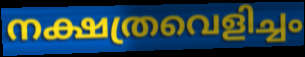
നക്ഷത്രവെളിച്ചം